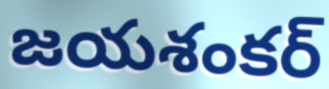
జయశంకర్